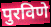
पुरविणे